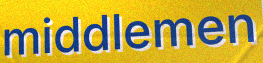
middlemen